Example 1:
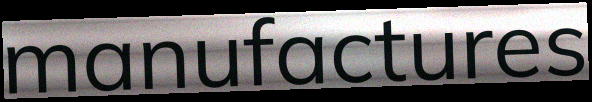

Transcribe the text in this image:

manufactures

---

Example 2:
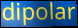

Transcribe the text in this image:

dipolar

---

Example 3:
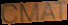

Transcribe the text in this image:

CMAT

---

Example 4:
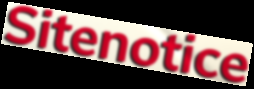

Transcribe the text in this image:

Sitenotice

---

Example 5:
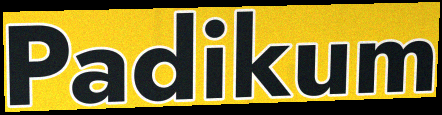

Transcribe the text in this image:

Padikum